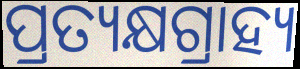
ପ୍ରତ୍ୟକ୍ଷଗ୍ରାହ୍ୟ